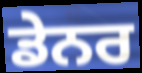
ਡੇਨਰ